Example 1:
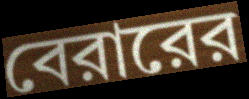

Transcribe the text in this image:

বেরারের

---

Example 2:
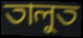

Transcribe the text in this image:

তালুত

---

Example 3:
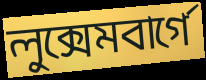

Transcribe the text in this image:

লুক্সেমবার্গে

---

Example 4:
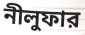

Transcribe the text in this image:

নীলুফার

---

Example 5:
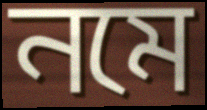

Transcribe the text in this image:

নমে